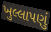
ખુલ્લાપણું